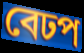
বেঢপ